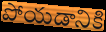
పోయడానికి